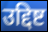
उद्दिष्ट